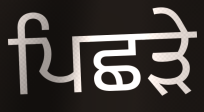
ਪਿਛੜੇ